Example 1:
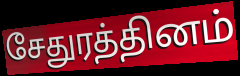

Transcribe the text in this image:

சேதுரத்தினம்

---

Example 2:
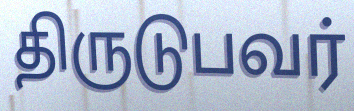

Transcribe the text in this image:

திருடுபவர்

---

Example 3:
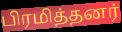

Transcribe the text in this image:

பிரமித்தனர்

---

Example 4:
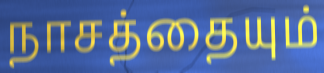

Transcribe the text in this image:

நாசத்தையும்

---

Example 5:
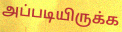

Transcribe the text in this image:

அப்படியிருக்க